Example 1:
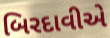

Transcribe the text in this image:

બિરદાવીએ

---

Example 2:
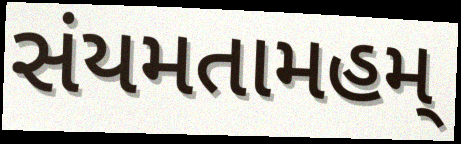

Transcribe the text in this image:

સંયમતામહમ્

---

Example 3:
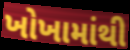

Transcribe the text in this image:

ખોખામાંથી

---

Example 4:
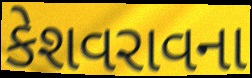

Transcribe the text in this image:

કેશવરાવના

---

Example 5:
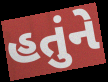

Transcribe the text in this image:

હતુંને